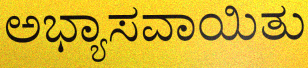
ಅಭ್ಯಾಸವಾಯಿತು